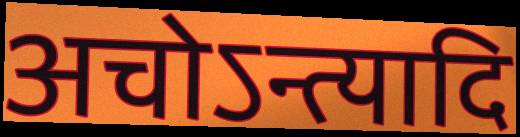
अचोऽन्त्यादि